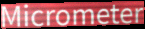
Micrometer